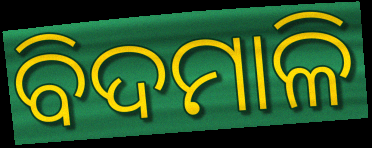
ବିଦମାଳି